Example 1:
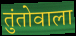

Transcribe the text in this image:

तुंतोवाला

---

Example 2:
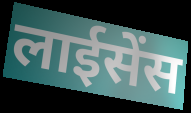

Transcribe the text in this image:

लाईसेंस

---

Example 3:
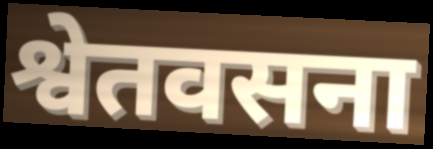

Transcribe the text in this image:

श्वेतवसना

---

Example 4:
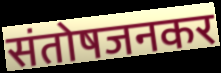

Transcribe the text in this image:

संतोषजनकर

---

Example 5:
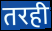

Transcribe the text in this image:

तरही